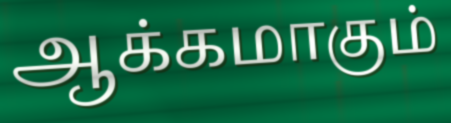
ஆக்கமாகும்